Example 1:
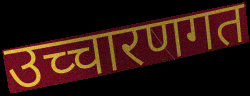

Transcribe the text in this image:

उच्चारणगत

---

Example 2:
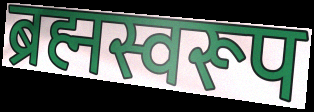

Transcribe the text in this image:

ब्रह्मस्वरूप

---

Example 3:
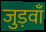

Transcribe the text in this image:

जुड़वाँ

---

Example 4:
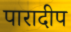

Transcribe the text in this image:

पारादीप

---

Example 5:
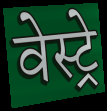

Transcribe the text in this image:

वेस्ट्रे